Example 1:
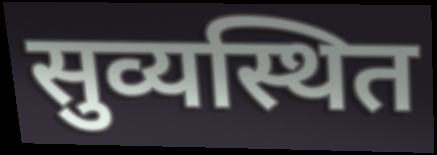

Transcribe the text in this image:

सुव्यस्थित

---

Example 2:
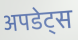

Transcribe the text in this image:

अपडेट्स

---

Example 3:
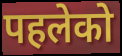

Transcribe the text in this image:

पहलेको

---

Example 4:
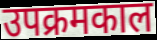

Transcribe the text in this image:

उपक्रमकाल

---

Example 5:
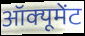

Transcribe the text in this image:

ऑक्यूमेंट